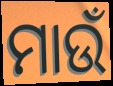
ମାଉଁ